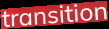
transition